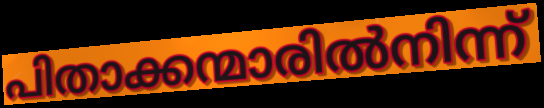
പിതാക്കന്മാരിൽനിന്ന്